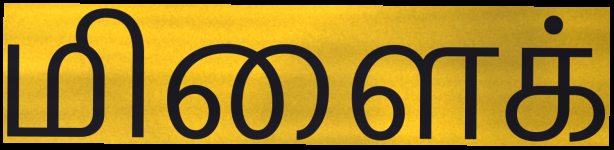
மிளைக்